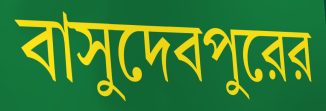
বাসুদেবপুরের